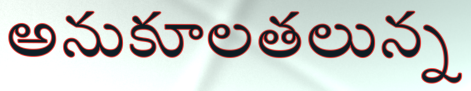
అనుకూలతలున్న